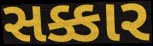
સક્કાર